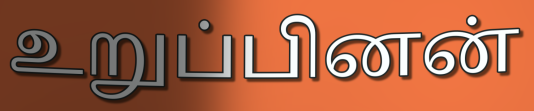
உறுப்பினன்